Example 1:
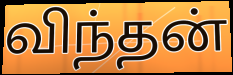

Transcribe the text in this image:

விந்தன்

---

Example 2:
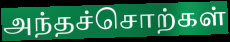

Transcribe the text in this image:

அந்தச்சொற்கள்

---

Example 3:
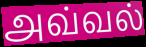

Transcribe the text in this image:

அவ்வல்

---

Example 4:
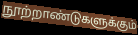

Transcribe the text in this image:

நூற்றாண்டுகளுக்கும்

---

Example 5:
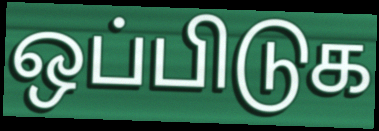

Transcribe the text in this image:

ஒப்பிடுக